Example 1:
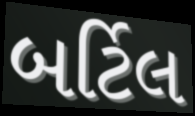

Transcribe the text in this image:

બર્ટિલ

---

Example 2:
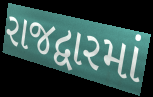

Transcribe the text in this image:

રાજદ્વારમાં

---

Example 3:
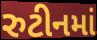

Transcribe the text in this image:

રુટીનમાં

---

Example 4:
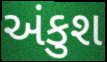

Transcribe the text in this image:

અંકુશ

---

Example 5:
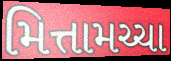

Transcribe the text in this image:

મિત્તામચ્ચા